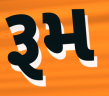
રૂમ